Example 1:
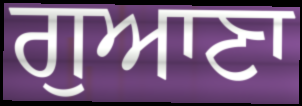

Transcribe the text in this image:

ਗੁਆਣਾ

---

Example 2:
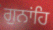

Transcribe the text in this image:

ਗੁਨਾਂਹਿ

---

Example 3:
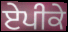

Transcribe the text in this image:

ਏਪੀਕੇ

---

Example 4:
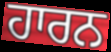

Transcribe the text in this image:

ਹਾਰਨ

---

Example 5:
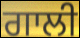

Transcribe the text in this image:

ਗਾਲੀ